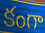
కంగా